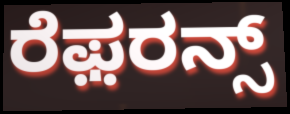
ರೆಫ಼ರನ್ಸ್